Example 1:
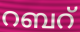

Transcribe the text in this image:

റബറ്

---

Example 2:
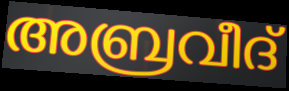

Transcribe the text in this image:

അബ്രവീദ്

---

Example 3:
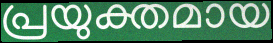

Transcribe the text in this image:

പ്രയുക്തമായ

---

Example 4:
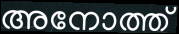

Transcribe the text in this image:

അനോത്ത്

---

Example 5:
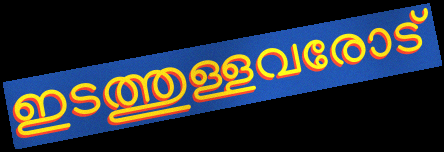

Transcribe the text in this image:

ഇടത്തുള്ളവരോട്